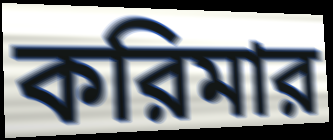
করিমার